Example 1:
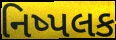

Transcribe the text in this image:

નિષ્પલક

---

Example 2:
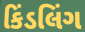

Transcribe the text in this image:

કિંડલિંગ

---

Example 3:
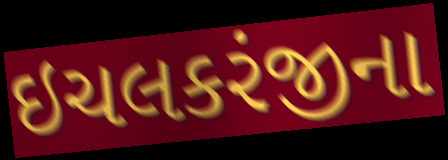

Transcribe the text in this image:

ઇચલકરંજીના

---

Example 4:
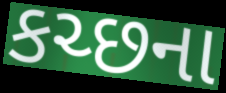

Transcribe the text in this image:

કચ્છના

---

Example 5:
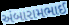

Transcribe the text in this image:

અંબારામભાઈ